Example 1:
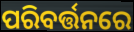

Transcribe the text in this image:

ପରିବର୍ତ୍ତନରେ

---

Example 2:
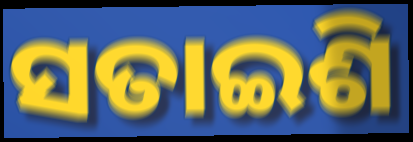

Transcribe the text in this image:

ସତାଇଶି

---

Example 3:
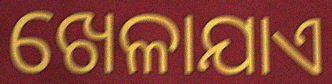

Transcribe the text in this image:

ଖେଳାଯାଏ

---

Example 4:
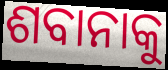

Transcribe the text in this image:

ଶବାନାକୁ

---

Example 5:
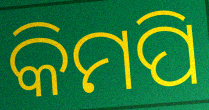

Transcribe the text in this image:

କିମପି